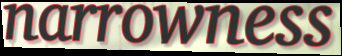
narrowness